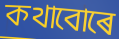
কথাবোৰে